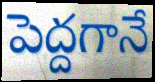
పెద్దగానే